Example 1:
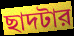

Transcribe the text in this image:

ছাদটার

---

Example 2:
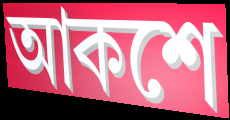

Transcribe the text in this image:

আকশে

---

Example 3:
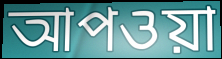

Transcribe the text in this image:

আপওয়া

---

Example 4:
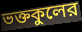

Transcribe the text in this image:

ভক্তকুলের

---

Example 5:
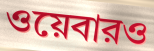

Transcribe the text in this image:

ওয়েবারও